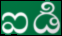
ఐడి